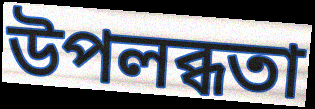
উপলব্ধতা